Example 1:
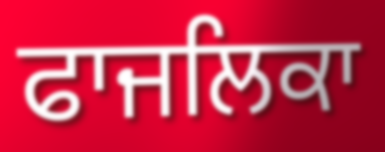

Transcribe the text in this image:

ਫਾਜਲਿਕਾ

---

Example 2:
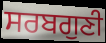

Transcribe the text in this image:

ਸਰਬਗੁਣੀ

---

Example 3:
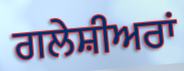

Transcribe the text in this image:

ਗਲੇਸ਼ੀਅਰਾਂ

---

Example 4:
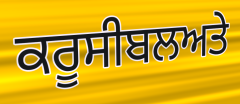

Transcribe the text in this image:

ਕਰੂਸੀਬਲਅਤੇ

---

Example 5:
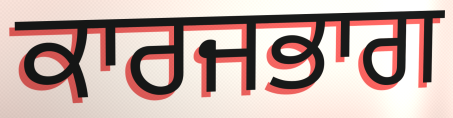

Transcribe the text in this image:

ਕਾਰਜਭਾਗ